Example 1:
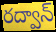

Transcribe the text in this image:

రద్వాన్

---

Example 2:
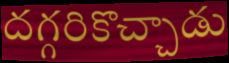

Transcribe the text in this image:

దగ్గరికొచ్చాడు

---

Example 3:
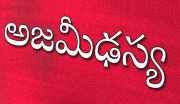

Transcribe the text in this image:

అజమీఢస్య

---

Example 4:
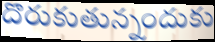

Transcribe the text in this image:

దొరుకుతున్నందుకు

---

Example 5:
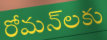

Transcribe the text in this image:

రోమన్‌లకు